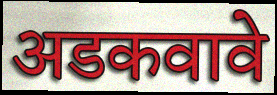
अडकवावे